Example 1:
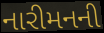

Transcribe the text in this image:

નારીમનની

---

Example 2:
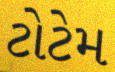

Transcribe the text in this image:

ટોટેમ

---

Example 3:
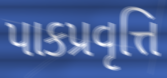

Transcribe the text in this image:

પાકપ્રવૃત્તિ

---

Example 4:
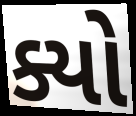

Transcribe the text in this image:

ક્યો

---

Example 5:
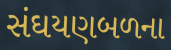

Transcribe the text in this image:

સંઘયણબળના